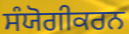
ਸੰਯੋਗੀਕਰਨ